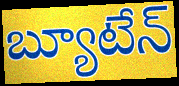
బ్యూటేన్